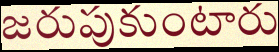
జరుపుకుంటారు